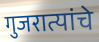
गुजरात्यांचे